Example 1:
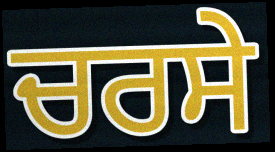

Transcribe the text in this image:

ਚਰਸੇ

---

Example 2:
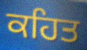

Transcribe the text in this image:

ਕਹਿਤ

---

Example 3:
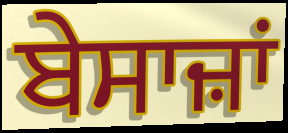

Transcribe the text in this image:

ਬੇਸਾਜ਼ਾਂ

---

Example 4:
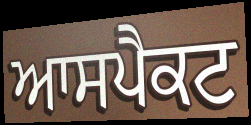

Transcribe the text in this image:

ਆਸਪੈਕਟ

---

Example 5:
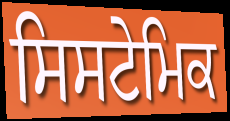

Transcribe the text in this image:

ਸਿਸਟੇਮਿਕ